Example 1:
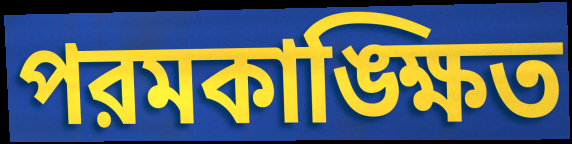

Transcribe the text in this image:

পরমকাঙ্ক্ষিত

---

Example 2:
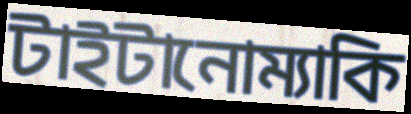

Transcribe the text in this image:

টাইটানোম্যাকি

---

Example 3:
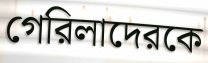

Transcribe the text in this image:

গেরিলাদেরকে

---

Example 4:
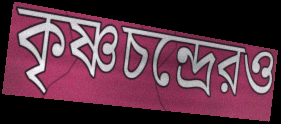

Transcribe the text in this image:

কৃষ্ণচন্দ্রেরও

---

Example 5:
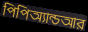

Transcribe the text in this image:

পিপিঅ্যান্ডআর